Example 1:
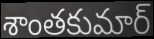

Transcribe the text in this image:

శాంతకుమార్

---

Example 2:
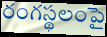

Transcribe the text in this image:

రంగస్థలంపై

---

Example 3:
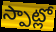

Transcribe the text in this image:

స్పాట్లో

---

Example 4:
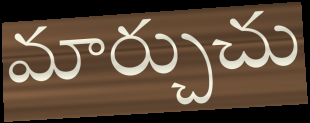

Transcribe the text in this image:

మార్చుచు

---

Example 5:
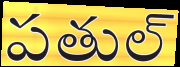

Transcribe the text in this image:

పతుల్